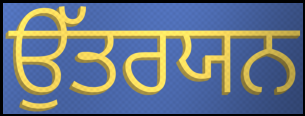
ਉੱਤਰਯਨ